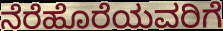
ನೆರೆಹೊರೆಯವರಿಗೆ